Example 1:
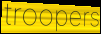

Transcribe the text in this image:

troopers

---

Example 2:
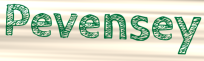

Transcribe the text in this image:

Pevensey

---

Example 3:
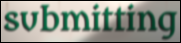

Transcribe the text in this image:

submitting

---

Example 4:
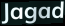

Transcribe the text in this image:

Jagad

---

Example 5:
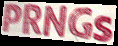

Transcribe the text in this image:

PRNGs